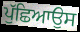
ਪੁੱਛਿਆਉਸ